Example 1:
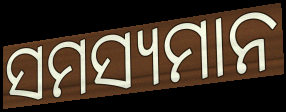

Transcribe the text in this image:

ସମସ୍ୟମାନ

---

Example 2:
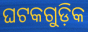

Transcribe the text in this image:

ଘଟକଗୁଡ଼ିକ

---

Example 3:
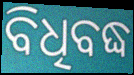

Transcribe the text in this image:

ବିଧିବଦ୍ଧ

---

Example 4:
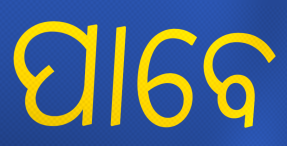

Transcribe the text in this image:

ପାବେ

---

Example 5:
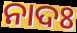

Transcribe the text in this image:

ନାଦଃ